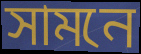
সামনে